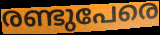
രണ്ടുപേരെ